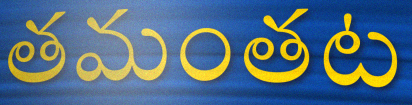
తమంతట